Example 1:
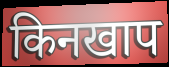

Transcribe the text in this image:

किनखाप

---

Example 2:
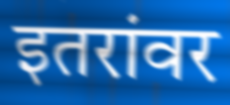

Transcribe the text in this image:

इतरांवर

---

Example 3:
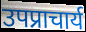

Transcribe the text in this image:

उपप्राचार्य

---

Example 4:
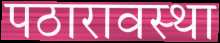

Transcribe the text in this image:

पठारावस्था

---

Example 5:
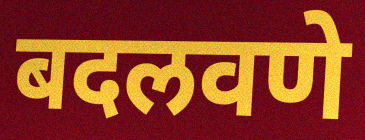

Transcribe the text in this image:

बदलवणे